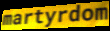
martyrdom